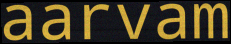
aarvam